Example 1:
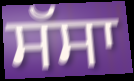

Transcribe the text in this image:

ਸੱਸਾ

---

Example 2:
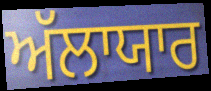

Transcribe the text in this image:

ਅੱਲਾਯਾਰ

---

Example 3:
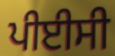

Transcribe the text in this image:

ਪੀਈਸੀ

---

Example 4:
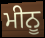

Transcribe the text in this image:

ਮੀਨੂ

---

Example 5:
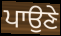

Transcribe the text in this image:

ਪਾਉਣੇ